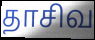
தாசிவ